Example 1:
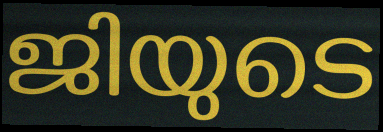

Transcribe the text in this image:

ജിയുടെ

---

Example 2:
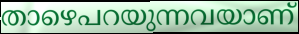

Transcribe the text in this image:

താഴെപറയുന്നവയാണ്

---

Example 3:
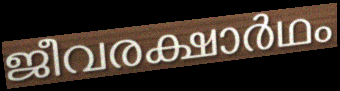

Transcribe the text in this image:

ജീവരക്ഷാർഥം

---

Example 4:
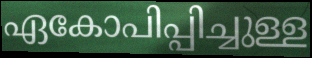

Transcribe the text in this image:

ഏകോപിപ്പിച്ചുള്ള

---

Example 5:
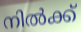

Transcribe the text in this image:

നിൽക്ക്